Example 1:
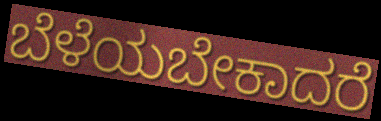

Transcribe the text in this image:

ಬೆಳೆಯಬೇಕಾದರೆ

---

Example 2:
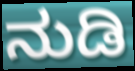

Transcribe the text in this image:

ನುಡಿ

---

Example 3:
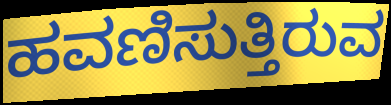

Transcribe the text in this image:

ಹವಣಿಸುತ್ತಿರುವ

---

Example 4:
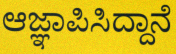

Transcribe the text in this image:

ಆಜ್ಞಾಪಿಸಿದ್ದಾನೆ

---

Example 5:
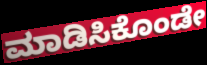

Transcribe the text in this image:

ಮಾಡಿಸಿಕೊಂಡೇ